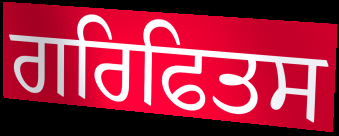
ਗਰਿਫਿਤਸ